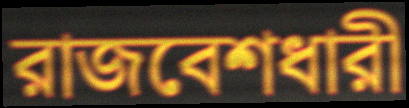
রাজবেশধারী